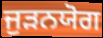
ਜੁੜਨਯੋਗ